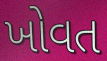
ખોવત